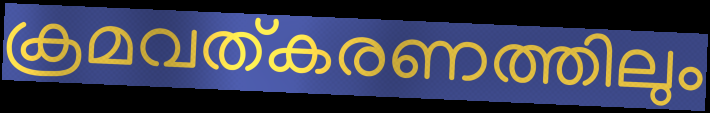
ക്രമവത്കരണത്തിലും